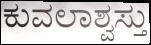
ಕುವಲಾಶ್ವಸ್ತು